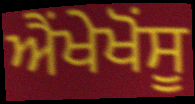
ਐਂਖੇਖੋਂਸੂ